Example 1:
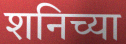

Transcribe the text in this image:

शनिच्या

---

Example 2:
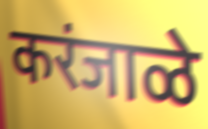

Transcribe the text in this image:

करंजाळे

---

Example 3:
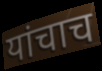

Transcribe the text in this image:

यांचाच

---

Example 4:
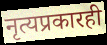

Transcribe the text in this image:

नृत्यप्रकारही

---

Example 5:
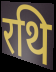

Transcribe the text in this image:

रथि